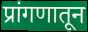
प्रांगणातून